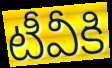
టీవీకి